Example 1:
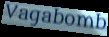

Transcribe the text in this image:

Vagabomb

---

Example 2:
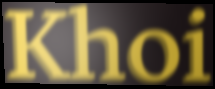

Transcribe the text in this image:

Khoi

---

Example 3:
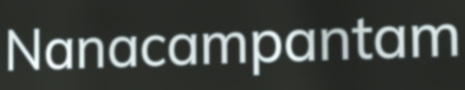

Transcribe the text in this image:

Nanacampantam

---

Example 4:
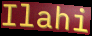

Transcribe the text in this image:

Ilahi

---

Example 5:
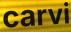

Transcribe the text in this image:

carvi